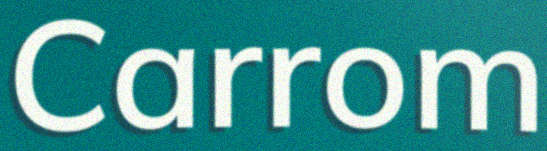
Carrom